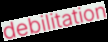
debilitation